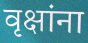
वृक्षांना